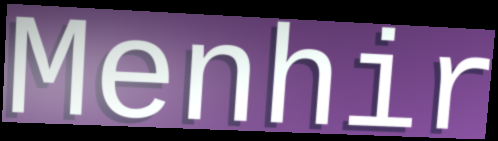
Menhir